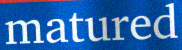
matured